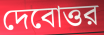
দেবোত্তর